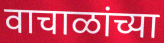
वाचाळांच्या